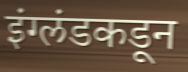
इंग्लंडकडून